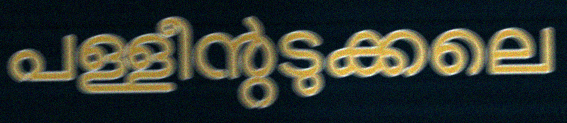
പള്ളീന്റടുക്കലെ